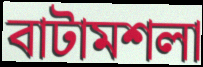
বাটামশলা